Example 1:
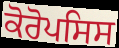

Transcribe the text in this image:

ਕੋਰੋਪਸਿਸ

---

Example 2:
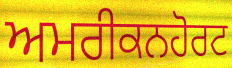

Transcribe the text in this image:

ਅਮਰੀਕਨਹੋਰਟ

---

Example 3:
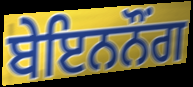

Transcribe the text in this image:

ਬੇਇਨਨੌੰਗ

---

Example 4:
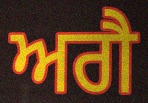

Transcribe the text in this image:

ਅਗੈ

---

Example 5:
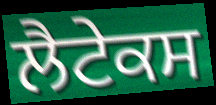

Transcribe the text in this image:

ਲੈਟੇਕਸ